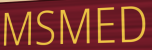
MSMED